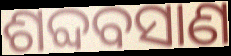
ଶବ୍ଦବସାଣ